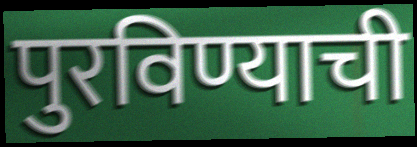
पुरविण्याची